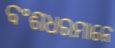
ବଂଶଧରମାନେ